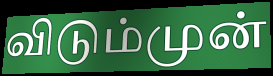
விடும்முன்